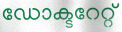
ഡോക്ടറേറ്റ്